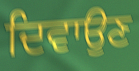
ਦਿਵਾਉਣ